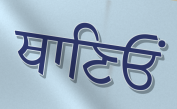
ਥਾਣਿਓਂ